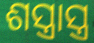
ଶସ୍ତ୍ରାସ୍ତ୍ର